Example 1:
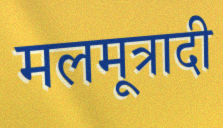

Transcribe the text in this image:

मलमूत्रादी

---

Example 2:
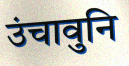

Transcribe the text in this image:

उंचावुनि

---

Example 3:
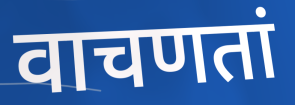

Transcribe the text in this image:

वाचणतां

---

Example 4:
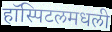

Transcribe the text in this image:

हॉस्पिटलमधली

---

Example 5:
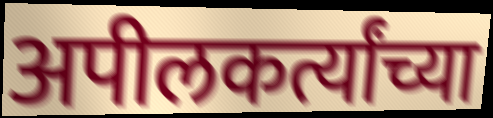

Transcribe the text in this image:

अपीलकर्त्यांच्या